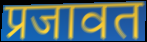
प्रजावत